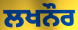
ਲਖਨੌਰ